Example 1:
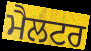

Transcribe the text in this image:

ਮੈਲਟਰ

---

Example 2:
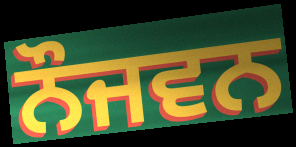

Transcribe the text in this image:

ਨੌਜਵਨ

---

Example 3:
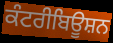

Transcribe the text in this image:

ਕੰਟਰੀਬਿਊਸ਼ਨ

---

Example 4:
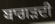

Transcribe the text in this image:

ਬਾਗੜਦੀ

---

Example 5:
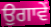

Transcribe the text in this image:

ਉਗਾਵੇਂ